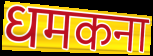
धमकना